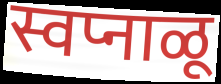
स्वप्नाळू